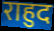
राहुद